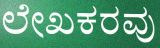
ಲೇಖಕರವು